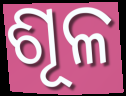
ଶୂଳ